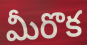
మీరొక